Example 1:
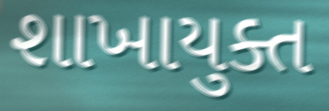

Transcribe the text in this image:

શાખાયુક્ત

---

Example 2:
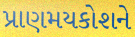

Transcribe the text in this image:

પ્રાણમયકોશને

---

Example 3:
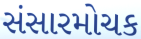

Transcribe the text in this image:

સંસારમોચક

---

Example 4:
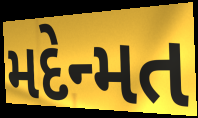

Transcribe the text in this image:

મદેન્મત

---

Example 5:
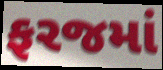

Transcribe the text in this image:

ફરજમાં